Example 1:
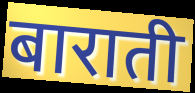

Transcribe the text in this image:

बाराती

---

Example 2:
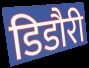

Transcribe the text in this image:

डिडौरी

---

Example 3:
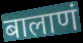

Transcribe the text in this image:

बालाणं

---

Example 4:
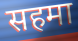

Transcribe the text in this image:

सहमा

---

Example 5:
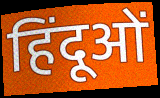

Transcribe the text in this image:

हिंदूओं